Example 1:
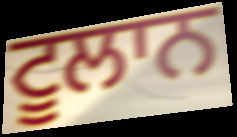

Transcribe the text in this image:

ਟੂਲਾਨ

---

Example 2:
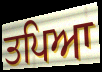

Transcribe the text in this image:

ਤਪਿਆ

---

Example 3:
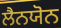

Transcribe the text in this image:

ਲੈਨਯੋਨ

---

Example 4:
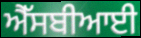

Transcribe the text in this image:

ਐੱਸਬੀਆਈ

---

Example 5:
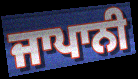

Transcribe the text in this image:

ਜਾਪਾਨੀ